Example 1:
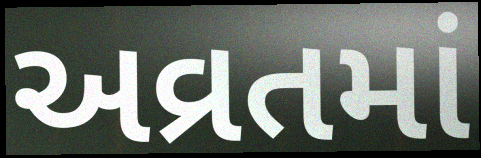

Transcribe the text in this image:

અવ્રતમાં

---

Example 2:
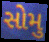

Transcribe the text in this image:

સોમુ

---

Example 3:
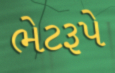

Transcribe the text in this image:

ભેટરૂપે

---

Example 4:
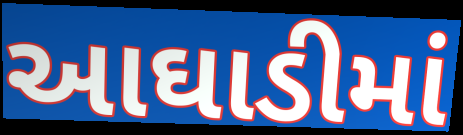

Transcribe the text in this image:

આઘાડીમાં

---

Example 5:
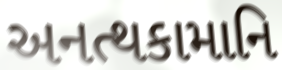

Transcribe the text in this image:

અનત્થકામાનિ